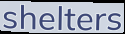
shelters